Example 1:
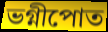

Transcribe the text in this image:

ভগ্নীপোত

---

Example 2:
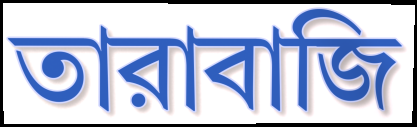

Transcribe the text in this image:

তারাবাজি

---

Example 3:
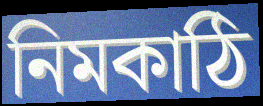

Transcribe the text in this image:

নিমকাঠি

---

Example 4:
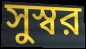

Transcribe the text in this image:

সুস্বর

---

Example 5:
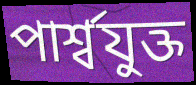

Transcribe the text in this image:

পার্শ্বযুক্ত